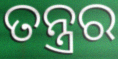
ତନ୍ତ୍ରର